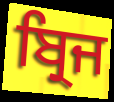
ਬ੍ਰਿਜ